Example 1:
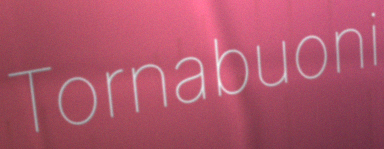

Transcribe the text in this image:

Tornabuoni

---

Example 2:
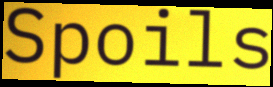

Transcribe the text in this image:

Spoils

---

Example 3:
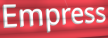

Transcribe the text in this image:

Empress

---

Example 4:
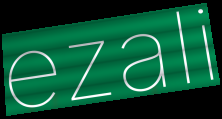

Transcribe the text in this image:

ezali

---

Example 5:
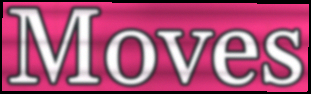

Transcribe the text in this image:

Moves